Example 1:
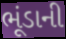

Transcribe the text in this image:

ભૂંડાની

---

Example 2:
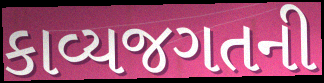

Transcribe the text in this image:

કાવ્યજગતની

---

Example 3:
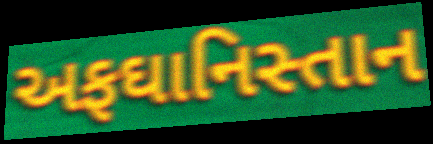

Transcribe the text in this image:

અફઘાનિસ્તાન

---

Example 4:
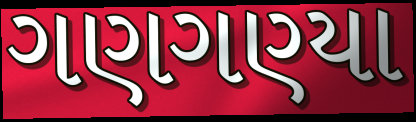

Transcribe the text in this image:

ગણગણ્યા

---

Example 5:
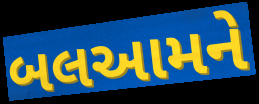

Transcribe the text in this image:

બલઆમને